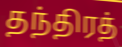
தந்திரத்